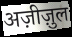
अज़ीज़ुल